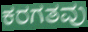
ಕರಗತವು